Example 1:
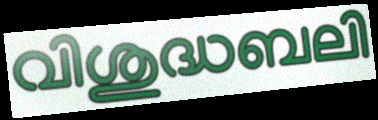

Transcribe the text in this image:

വിശുദ്ധബലി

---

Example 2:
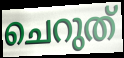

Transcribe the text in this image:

ചെറുത്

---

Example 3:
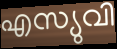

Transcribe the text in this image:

എസ്യുവി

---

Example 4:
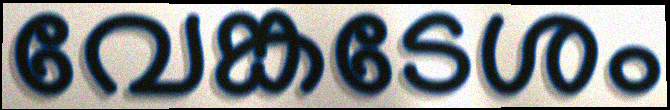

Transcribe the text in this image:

വേങ്കടേശം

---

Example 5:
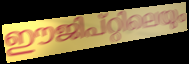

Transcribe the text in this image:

ഈജിപ്റ്റിലെയും